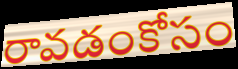
రావడంకోసం